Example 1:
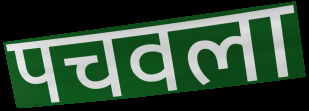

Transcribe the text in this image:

पचवला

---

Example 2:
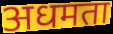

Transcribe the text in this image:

अधमता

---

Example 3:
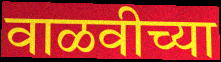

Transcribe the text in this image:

वाळवीच्या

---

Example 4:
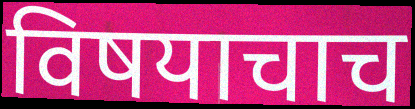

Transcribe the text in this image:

विषयाचाच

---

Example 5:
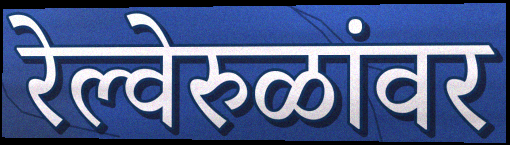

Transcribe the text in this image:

रेल्वेरुळांवर